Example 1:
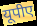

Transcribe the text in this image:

यूपीए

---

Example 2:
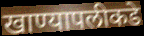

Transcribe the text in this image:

खाण्यापलीकडे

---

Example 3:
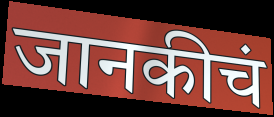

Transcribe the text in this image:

जानकीचं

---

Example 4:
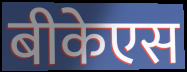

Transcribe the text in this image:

बीकेएस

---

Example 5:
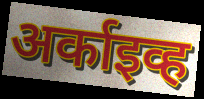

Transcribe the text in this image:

अर्काइव्ह